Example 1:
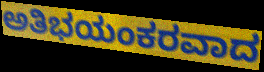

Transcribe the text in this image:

ಅತಿಭಯಂಕರವಾದ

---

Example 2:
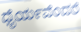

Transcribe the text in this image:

ಧೈರ್ಯವೆಂದರೆ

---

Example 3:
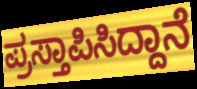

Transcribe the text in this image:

ಪ್ರಸ್ತಾಪಿಸಿದ್ದಾನೆ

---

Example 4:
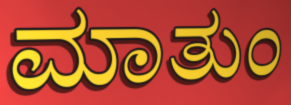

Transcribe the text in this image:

ಮಾತುಂ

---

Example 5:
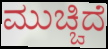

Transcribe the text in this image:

ಮುಚ್ಚಿದೆ